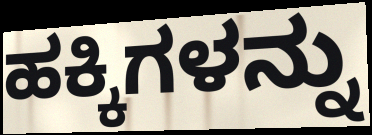
ಹಕ್ಕಿಗಳನ್ನು